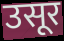
उसूर